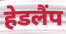
हेडलैंप